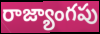
రాజ్యాంగపు